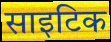
साइटिक